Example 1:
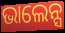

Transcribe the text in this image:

ଭାଲେନ୍ସ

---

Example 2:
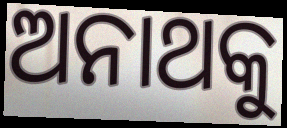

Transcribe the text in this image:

ଅନାଥକୁ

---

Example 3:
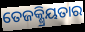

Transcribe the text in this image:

ତେଜକ୍ଶ୍ରିୟତାର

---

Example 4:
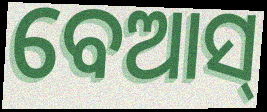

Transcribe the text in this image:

ବେଆସ୍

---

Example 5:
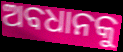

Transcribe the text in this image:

ଅବଧାନକୁ